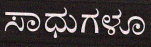
ಸಾಧುಗಳೂ